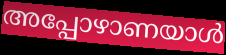
അപ്പോഴാണയാൾ